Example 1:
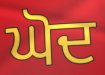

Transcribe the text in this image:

ਘੋਦ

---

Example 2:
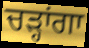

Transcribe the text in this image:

ਚੜ੍ਹਾਂਗਾ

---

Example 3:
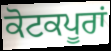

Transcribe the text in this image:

ਕੋਟਕਪੂਰਾਂ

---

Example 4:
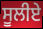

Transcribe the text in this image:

ਸੂਲੀਏ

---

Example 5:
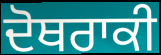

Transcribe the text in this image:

ਦੋਥਰਾਕੀ